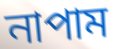
নাপাম